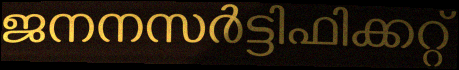
ജനനസർട്ടിഫിക്കറ്റ്